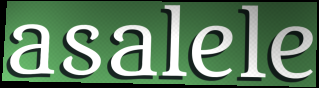
asalele